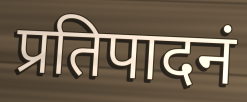
प्रतिपादनं